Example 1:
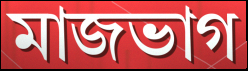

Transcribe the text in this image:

মাজভাগ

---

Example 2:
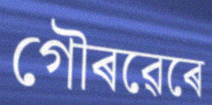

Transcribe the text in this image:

গৌৰৱেৰে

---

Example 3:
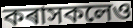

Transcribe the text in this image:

কৰাসকলেও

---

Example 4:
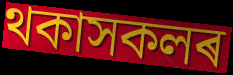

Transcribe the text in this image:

থকাসকলৰ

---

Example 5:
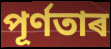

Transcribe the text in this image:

পূৰ্ণতাৰ